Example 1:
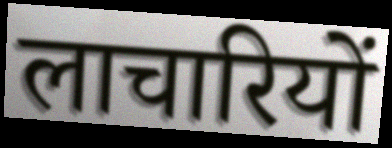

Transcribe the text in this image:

लाचारियों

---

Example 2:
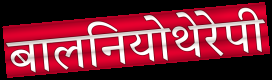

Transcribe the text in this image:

बालनियोथेरेपी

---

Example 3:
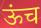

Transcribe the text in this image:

ऊंच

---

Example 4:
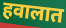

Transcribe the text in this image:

हवालात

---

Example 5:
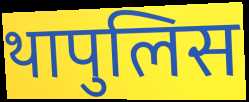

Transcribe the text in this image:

थापुलिस